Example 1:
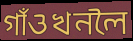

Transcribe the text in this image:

গাঁওখনলৈ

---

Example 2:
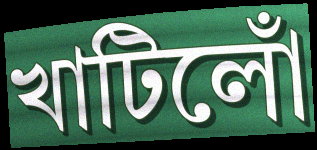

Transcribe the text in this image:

খাটিলোঁ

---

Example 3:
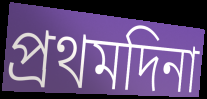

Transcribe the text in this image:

প্ৰথমদিনা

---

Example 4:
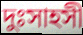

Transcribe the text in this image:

দুঃসাহসী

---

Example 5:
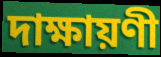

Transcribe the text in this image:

দাক্ষায়ণী